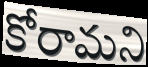
కోరామని